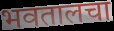
भवतालचा